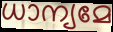
ധാന്യമേ